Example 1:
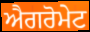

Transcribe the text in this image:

ਐਗਰੋਮੇਟ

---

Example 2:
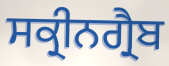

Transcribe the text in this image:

ਸਕ੍ਰੀਨਗ੍ਰੈਬ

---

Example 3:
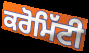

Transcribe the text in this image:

ਕਰੋਮਿੱਟੀ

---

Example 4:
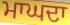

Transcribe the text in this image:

ਮਾਘਦਾ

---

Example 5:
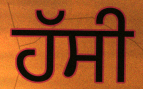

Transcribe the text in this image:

ਹੱਸੀ